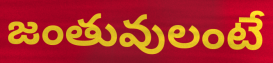
జంతువులంటే